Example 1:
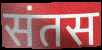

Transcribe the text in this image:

संतस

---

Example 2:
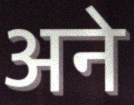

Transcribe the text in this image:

अने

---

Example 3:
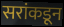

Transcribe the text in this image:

सरांकडून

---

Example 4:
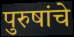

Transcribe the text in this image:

पुरुषांचे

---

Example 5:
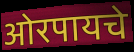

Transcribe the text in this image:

ओरपायचे